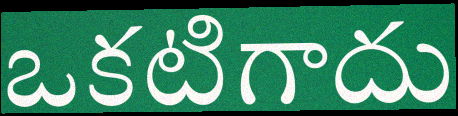
ఒకటిగాదు